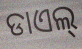
ଡାଏଲ୍